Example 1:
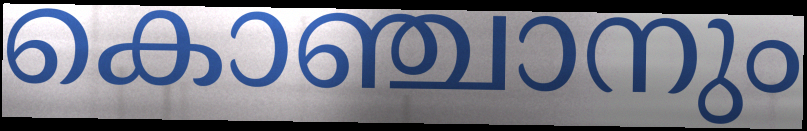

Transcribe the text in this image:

കൊഞ്ചാനും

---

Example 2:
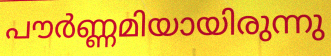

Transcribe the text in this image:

പൗർണ്ണമിയായിരുന്നു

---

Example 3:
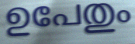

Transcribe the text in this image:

ഉപേതും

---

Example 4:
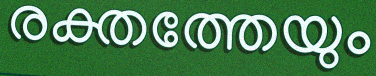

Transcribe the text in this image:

രക്തത്തേയും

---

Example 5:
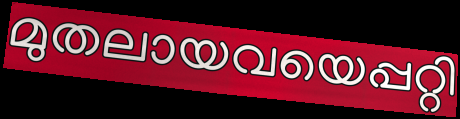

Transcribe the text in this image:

മുതലായവയെപ്പറ്റി